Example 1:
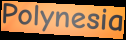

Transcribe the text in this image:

Polynesia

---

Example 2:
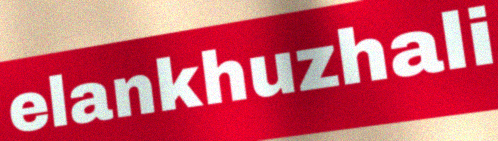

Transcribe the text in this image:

elankhuzhali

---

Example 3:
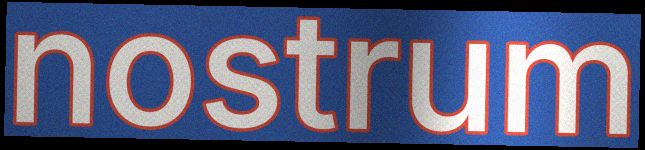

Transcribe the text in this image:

nostrum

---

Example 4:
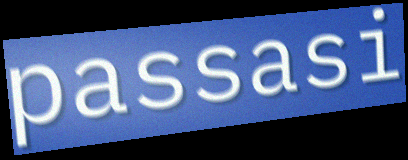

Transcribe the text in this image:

passasi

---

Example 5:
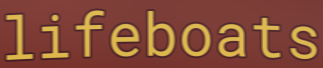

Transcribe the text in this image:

lifeboats